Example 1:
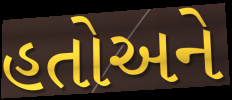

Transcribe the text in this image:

હતોઅને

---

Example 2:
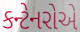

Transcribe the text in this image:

કન્ટેનરોએ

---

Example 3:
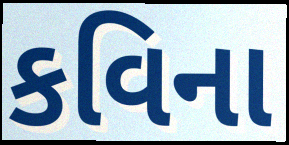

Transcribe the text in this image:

કવિના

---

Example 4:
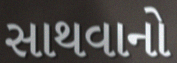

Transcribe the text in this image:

સાથવાનો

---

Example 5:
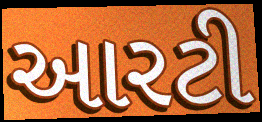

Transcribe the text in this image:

આરટી